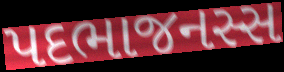
પદભાજનસ્સ